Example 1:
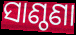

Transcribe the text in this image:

ସାଣ୍ଠଣା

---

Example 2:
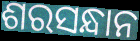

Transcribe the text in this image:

ଶରସନ୍ଧାନ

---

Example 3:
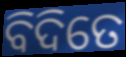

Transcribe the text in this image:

ବିଦିତେ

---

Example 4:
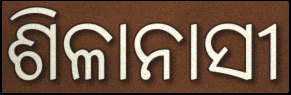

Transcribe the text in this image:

ଶିଳାନାସୀ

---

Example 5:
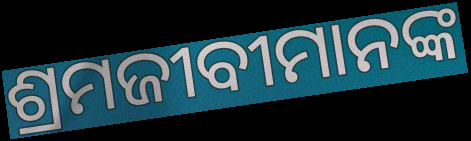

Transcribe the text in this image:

ଶ୍ରମଜୀବୀମାନଙ୍କ